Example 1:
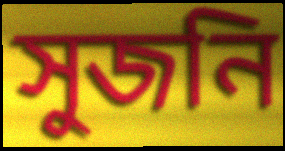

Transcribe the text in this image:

সুজনি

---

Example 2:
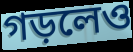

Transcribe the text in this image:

গড়লেও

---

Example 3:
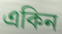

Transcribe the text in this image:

একিন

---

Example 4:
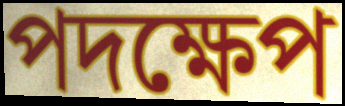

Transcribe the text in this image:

পদক্ষেপ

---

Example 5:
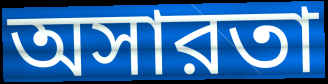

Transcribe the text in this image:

অসারতা